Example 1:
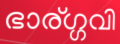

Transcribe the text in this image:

ഭാര്ഗ്ഗവി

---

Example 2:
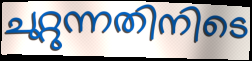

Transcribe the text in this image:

ചുറ്റുന്നതിനിടെ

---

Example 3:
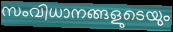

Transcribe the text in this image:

സംവിധാനങ്ങളുടെയും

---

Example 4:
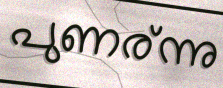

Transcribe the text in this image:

പുണര്ന്നു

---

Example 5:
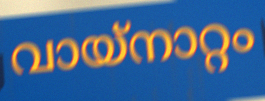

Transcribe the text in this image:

വായ്നാറ്റം